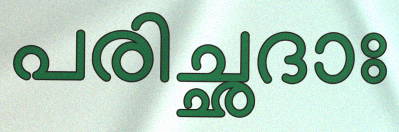
പരിച്ഛദാഃ